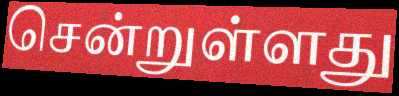
சென்றுள்ளது